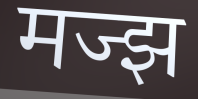
मज्झ